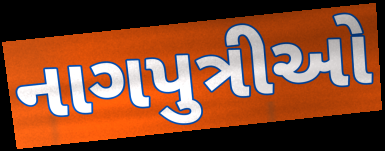
નાગપુત્રીઓ